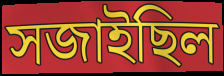
সজাইছিল